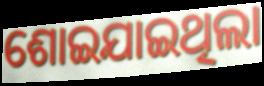
ଶୋଇଯାଇଥିଲା